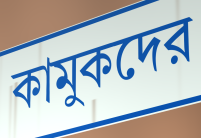
কামুকদের